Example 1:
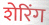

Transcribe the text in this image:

शेरिंग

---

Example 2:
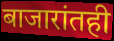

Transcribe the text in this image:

बाजारांतही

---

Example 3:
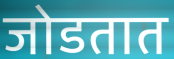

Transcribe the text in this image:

जोडतात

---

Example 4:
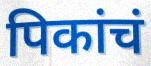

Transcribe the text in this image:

पिकांचं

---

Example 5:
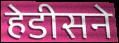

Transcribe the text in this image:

हेडीसने